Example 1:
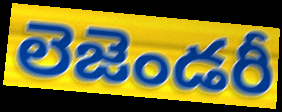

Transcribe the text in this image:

లెజెండరీ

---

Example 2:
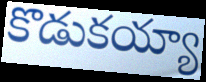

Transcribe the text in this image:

కొడుకయ్యా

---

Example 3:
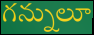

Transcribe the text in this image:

గన్నులూ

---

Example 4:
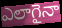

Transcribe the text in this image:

ఎలాగైనా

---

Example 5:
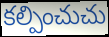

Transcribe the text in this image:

కల్పించుచు